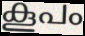
കൂപം